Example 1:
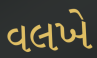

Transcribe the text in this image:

વલખે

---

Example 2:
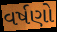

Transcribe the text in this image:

વર્ષણો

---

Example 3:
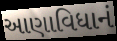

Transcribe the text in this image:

આણાવિધાનં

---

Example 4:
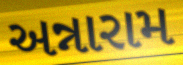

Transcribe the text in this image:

અન્નારામ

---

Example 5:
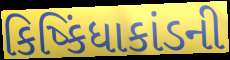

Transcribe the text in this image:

કિષ્કિંધાકાંડની